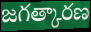
జగత్కారణ